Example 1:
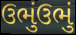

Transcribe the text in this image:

ઉભુંઉભું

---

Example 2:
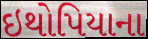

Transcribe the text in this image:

ઇથોપિયાના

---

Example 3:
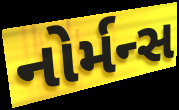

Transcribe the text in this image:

નોર્મન્સ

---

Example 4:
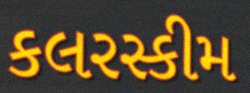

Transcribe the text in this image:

કલરસ્કીમ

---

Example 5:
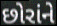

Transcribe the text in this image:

છોરાંને